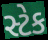
સ્ટેક